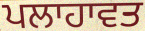
ਪਲਾਹਾਵਤ